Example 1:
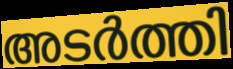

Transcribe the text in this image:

അടർത്തി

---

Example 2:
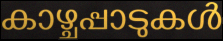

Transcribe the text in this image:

കാഴ്ചപ്പാടുകൾ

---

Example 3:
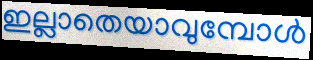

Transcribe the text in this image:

ഇല്ലാതെയാവുമ്പോൾ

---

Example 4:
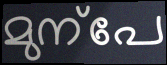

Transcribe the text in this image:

മുന്പേ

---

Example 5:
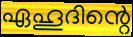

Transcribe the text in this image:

ഏഹൂദിന്റെ